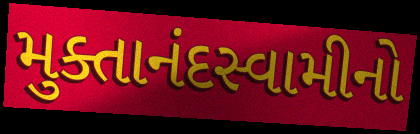
મુક્તાનંદસ્વામીનો